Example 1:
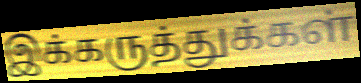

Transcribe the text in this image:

இக்கருத்துக்கள்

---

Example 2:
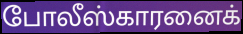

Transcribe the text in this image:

போலீஸ்காரனைக்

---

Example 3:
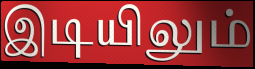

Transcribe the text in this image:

இடியிலும்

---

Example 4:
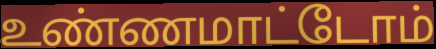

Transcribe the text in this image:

உண்ணமாட்டோம்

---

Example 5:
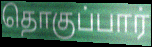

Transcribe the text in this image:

தொகுப்பார்